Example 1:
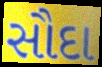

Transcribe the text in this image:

સૌદા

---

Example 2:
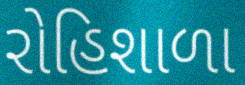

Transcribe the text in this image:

રોહિશાળા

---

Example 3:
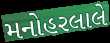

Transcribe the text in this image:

મનોહરલાલે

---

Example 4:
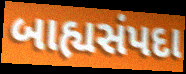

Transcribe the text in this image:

બાહ્યસંપદા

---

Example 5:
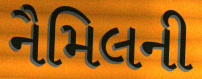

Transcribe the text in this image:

નૈમિલની